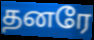
தனரே